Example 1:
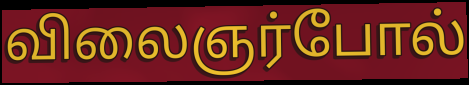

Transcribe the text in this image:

விலைஞர்போல்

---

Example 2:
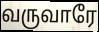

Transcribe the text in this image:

வருவாரே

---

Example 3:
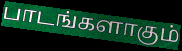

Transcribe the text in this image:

பாடங்களாகும்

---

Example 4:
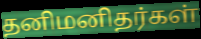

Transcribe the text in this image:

தனிமனிதர்கள்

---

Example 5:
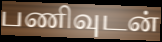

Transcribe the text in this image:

பணிவுடன்